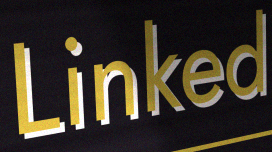
Linked